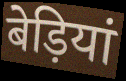
बेड़ियां